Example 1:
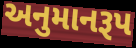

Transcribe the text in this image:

અનુમાનરૂપ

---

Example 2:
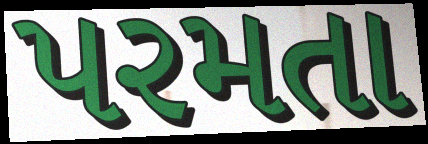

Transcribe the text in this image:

પરમતા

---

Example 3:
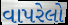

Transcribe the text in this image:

વાપરેલો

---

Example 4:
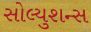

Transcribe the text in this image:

સોલ્યુશન્સ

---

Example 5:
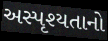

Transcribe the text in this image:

અસ્પૃશ્યતાનો